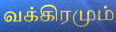
வக்கிரமும்